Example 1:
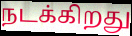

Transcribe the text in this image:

நடக்கிறது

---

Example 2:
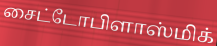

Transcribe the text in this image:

சைட்டோபிளாஸ்மிக்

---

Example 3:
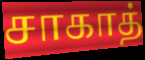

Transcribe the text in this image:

சாகாத்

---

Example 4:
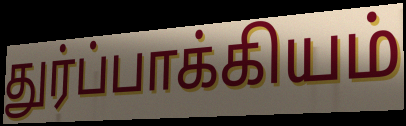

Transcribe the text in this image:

துர்ப்பாக்கியம்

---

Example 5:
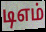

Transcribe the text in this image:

டிஎம்